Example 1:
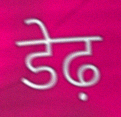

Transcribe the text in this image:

डेढ़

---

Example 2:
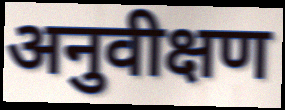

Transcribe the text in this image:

अनुवीक्षण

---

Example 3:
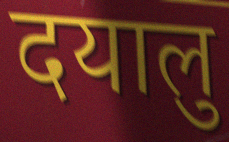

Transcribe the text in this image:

दयालु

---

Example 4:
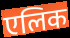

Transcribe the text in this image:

एलिक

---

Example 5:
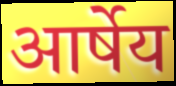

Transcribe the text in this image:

आर्षेय